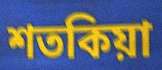
শতকিয়া